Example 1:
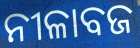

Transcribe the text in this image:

ନୀଳାବଜ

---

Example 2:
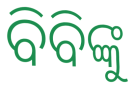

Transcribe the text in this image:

ବିବିଙ୍କୁ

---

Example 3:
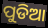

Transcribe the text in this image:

ପୁଡିଆ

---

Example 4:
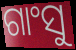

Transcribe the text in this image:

ଗାଂସୁ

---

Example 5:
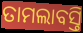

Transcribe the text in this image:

ତାମଲାବସ୍ତି